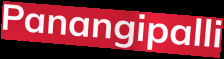
Panangipalli